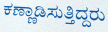
ಕಣ್ಣಾಡಿಸುತ್ತಿದ್ದರು